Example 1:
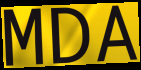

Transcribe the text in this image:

MDA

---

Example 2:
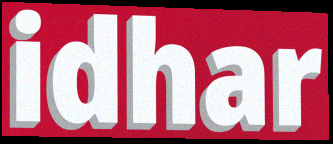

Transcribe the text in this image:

idhar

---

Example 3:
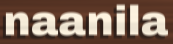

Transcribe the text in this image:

naanila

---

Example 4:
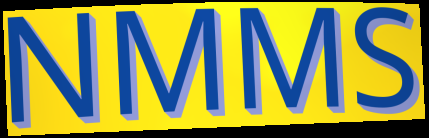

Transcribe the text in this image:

NMMS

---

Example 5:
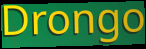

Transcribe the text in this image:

Drongo